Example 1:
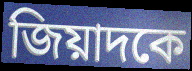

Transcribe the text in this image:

জিয়াদকে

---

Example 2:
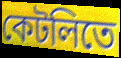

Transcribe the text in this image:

কেটলিতে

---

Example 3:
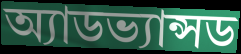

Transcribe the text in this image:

অ্যাডভ্যান্সড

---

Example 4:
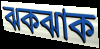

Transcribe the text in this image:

ঝকঝাক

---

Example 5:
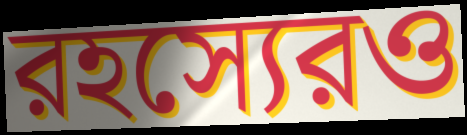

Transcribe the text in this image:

রহস্যেরও